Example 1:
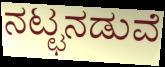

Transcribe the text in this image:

ನಟ್ಟನಡುವೆ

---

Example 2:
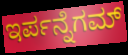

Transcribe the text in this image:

ಇರ್ಪನ್ನೆಗಮ್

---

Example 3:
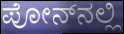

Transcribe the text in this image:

ಪೋನ್‍ನಲ್ಲಿ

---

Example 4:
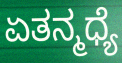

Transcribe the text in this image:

ಏತನ್ಮಧ್ಯೆ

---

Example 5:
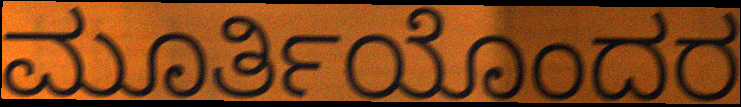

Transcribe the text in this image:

ಮೂರ್ತಿಯೊಂದರ